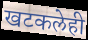
खटकलेही